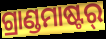
ଗ୍ରାଣ୍ଡମାଷ୍ଟର୍